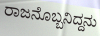
ರಾಜನೊಬ್ಬನಿದ್ದನು